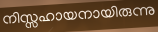
നിസ്സഹായനായിരുന്നു